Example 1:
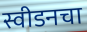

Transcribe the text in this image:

स्वीडनचा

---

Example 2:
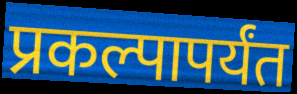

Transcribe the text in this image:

प्रकल्पापर्यंत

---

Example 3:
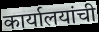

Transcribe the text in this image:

कार्यालयांची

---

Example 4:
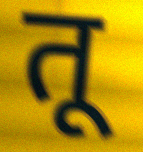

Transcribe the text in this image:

तू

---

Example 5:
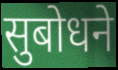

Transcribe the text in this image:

सुबोधने